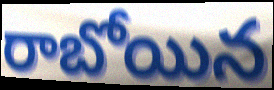
రాబోయిన